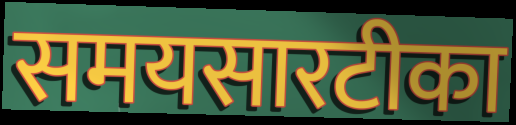
समयसारटीका